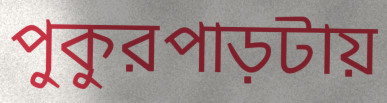
পুকুরপাড়টায়